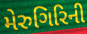
મેરુગિરિની